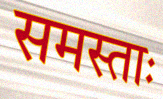
समस्ताः